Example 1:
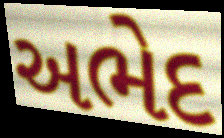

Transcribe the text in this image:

અભેદ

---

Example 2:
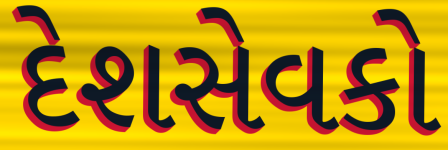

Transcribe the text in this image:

દેશસેવકો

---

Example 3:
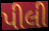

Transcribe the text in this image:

પીલી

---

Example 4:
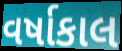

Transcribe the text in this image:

વર્ષાકાલ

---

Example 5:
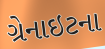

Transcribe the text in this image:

ગ્રેનાઇટના